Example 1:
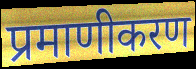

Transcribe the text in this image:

प्रमाणीकरण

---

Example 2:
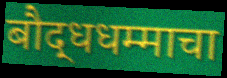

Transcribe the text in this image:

बौद्धधम्माचा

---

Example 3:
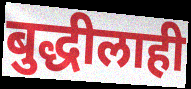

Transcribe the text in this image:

बुद्धीलाही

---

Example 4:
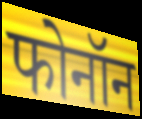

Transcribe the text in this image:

फोनॉन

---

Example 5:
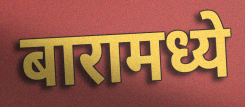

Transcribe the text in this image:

बारामध्ये